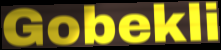
Gobekli